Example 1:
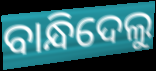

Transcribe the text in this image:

ବାନ୍ଧିଦେଲୁ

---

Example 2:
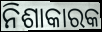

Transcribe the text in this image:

ନିଶାକାରକ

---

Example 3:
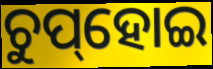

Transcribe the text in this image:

ଚୁପ୍‌ହୋଇ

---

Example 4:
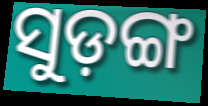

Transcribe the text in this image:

ସୁଡ଼ଙ୍ଗ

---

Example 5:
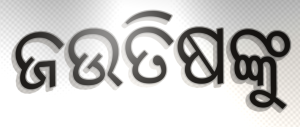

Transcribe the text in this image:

ଜଉତିଷଙ୍କୁ